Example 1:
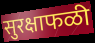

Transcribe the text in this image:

सुरक्षाफळी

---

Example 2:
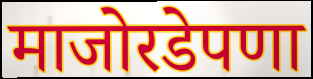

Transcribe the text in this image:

माजोरडेपणा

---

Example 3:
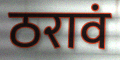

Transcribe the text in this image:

ठरावं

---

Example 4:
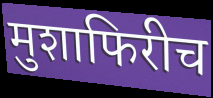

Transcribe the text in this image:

मुशाफिरीच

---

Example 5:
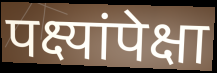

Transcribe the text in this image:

पक्ष्यांपेक्षा